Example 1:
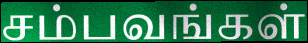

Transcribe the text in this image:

சம்பவங்கள்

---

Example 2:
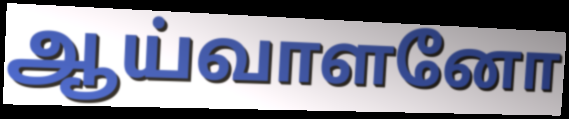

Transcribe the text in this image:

ஆய்வாளனோ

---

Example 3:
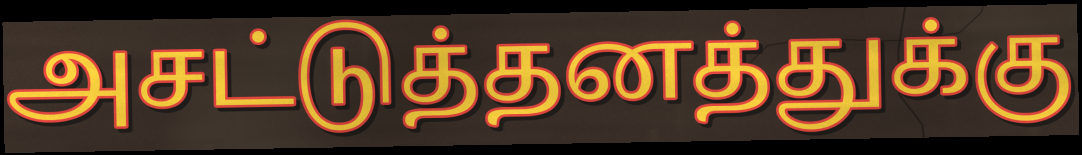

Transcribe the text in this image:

அசட்டுத்தனத்துக்கு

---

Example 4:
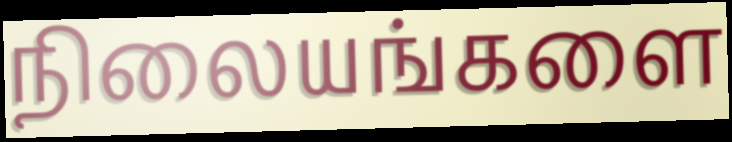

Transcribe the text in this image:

நிலையங்களை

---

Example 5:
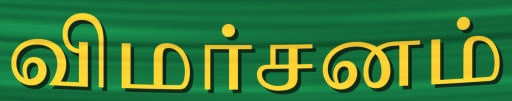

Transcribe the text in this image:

விமர்சனம்